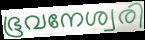
ഭൂവനേശ്വരി